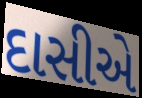
દાસીએ